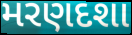
મરણદશા